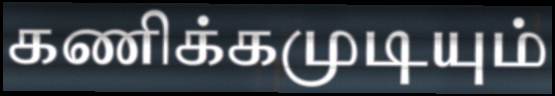
கணிக்கமுடியும்